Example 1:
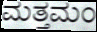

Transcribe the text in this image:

ಮತ್ತಮಂ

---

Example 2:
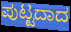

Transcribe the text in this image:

ಪುಟ್ಟದಾದ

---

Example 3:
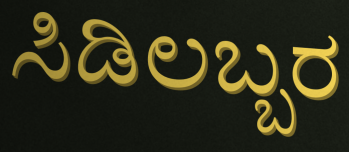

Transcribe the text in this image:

ಸಿಡಿಲಬ್ಬರ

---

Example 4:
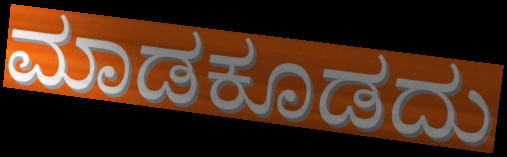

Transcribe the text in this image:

ಮಾಡಕೂಡದು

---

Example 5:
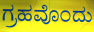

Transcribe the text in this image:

ಗ್ರಹವೊಂದು